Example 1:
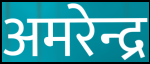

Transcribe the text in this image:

अमरेन्द्र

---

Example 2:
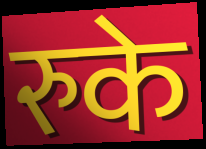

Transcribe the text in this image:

रुके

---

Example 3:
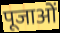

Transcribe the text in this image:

पूजाओं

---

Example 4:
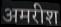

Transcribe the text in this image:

अमरीश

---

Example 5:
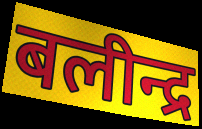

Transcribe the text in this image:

बलीन्द्र